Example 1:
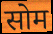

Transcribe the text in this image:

सोम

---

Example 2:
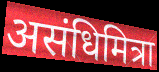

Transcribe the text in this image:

असंधिमित्रा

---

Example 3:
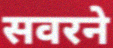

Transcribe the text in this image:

सवरने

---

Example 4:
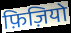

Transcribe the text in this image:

फ़िज़ियो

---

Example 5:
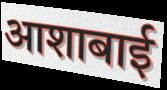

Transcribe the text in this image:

आशाबाई